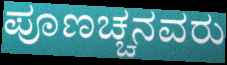
ಪೂಣಚ್ಚನವರು